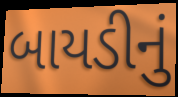
બાયડીનું